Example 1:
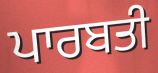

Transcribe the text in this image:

ਪਾਰਬਤੀ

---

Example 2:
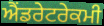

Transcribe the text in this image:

ਐਂਡਰੇਟਰੇਕਮੀ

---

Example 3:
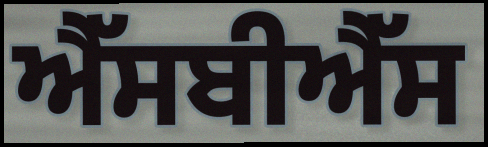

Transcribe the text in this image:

ਐੱਸਬੀਐੱਸ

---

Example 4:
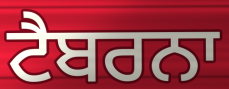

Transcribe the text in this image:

ਟੈਬਰਨਾ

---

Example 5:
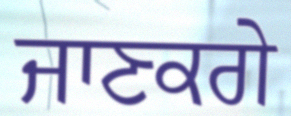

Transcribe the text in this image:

ਜਾਣਕਗੇ